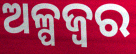
ଅଳ୍ପଜ୍ଵର